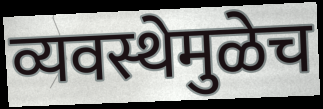
व्यवस्थेमुळेच